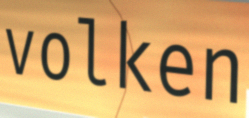
volken